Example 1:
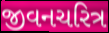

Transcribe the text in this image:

જીવનચરિત્ર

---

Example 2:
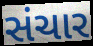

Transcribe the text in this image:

સંચાર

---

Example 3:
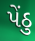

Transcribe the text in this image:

પેંઠુ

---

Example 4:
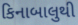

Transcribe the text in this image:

કિનાબાલુથી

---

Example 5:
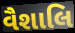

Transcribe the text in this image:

વૈશાલિ